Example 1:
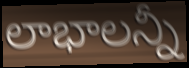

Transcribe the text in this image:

లాభాలన్నీ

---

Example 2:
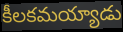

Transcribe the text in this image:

కీలకమయ్యాడు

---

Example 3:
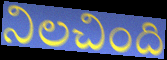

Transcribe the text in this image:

నిలచింది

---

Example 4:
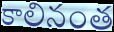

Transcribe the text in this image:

కాలినంత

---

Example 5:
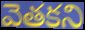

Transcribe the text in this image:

వెతకని